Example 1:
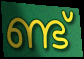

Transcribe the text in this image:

ണ്ട്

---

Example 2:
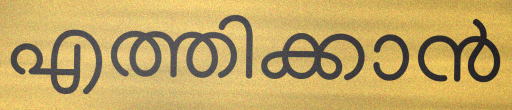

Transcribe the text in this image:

എത്തിക്കാൻ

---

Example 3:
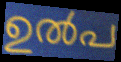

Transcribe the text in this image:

ഉൽപ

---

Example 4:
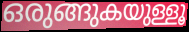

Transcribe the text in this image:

ഒരുങ്ങുകയുള്ളൂ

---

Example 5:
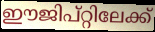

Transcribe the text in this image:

ഈജിപ്റ്റിലേക്ക്